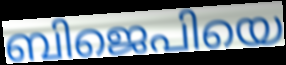
ബിജെപിയെ